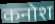
कनोश